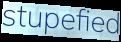
stupefied